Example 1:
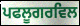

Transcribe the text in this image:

ਪਫਲੂਗਰਵਿਲ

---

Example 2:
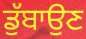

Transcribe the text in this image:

ਡੁੱਬਾਉਣ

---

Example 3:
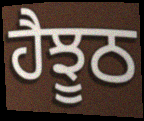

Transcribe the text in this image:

ਹੈਝੂਠ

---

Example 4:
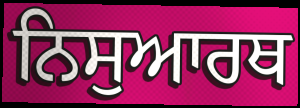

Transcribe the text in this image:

ਨਿਸੁਆਰਥ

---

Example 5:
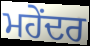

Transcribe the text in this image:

ਮਹੇਂਦਰ